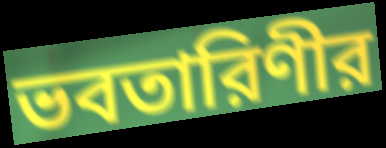
ভবতারিণীর